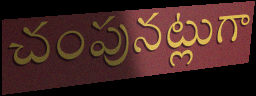
చంపునట్లుగా